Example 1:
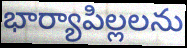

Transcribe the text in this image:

భార్యాపిల్లలను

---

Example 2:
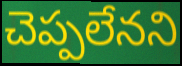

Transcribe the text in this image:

చెప్పలేనని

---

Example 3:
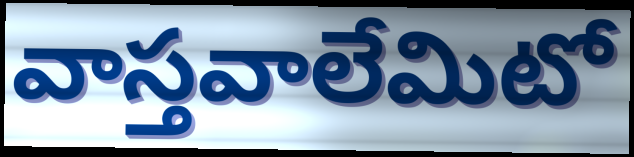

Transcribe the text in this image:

వాస్తవాలేమిటో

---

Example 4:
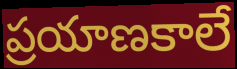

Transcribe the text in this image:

ప్రయాణకాలే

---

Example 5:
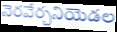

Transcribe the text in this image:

నెరవేర్చనియెడల